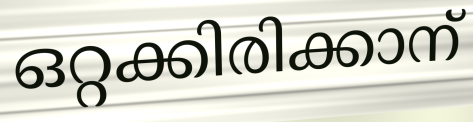
ഒറ്റക്കിരിക്കാന്